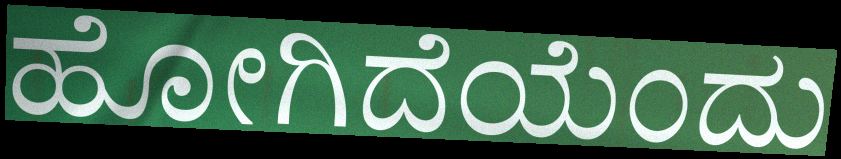
ಹೋಗಿದೆಯೆಂದು